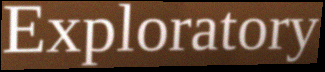
Exploratory